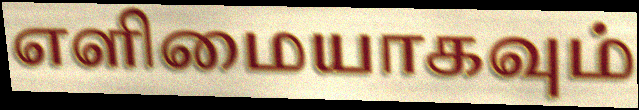
எளிமையாகவும்